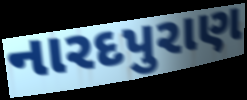
નારદપુરાણ